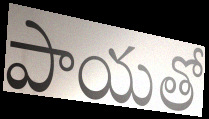
పాయతో